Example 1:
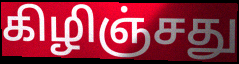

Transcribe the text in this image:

கிழிஞ்சது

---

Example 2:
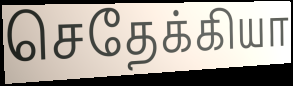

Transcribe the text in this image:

செதேக்கியா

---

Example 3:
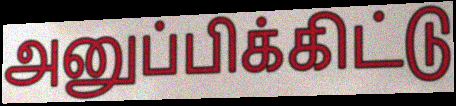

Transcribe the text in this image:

அனுப்பிக்கிட்டு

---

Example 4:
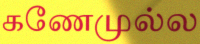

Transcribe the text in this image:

கணேமுல்ல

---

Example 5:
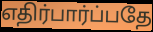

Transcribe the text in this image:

எதிர்பார்ப்பதே